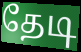
தேடி